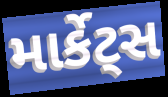
માર્કેટ્સ